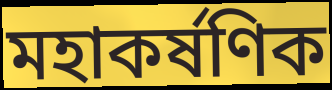
মহাকৰ্ষণিক